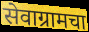
सेवाग्रामचा